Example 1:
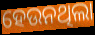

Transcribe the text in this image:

ହେଉନଥିଲା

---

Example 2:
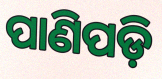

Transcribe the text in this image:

ପାଣିପଡ଼ି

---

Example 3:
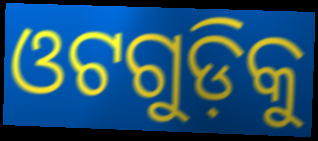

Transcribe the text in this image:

ଓଟଗୁଡ଼ିକୁ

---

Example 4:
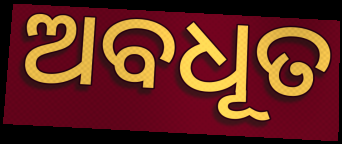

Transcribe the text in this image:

ଅବଧୂତ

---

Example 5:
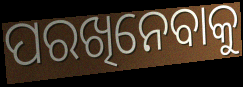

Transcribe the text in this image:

ପରଖିନେବାକୁ